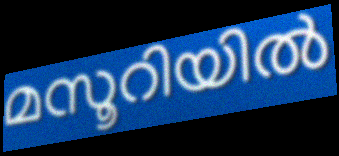
മസൂറിയിൽ